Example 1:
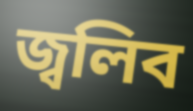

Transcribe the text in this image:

জ্বলিব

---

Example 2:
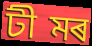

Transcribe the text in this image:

টীমৰ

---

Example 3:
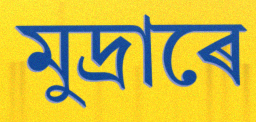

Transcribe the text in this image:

মুদ্ৰাৰে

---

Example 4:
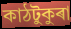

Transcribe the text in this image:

কাঠটুকুৰা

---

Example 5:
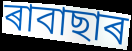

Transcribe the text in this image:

ৰাবাছাৰ